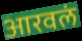
आरवलं